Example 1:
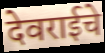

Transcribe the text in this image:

देवराईचे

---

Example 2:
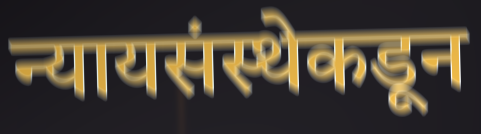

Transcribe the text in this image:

न्यायसंस्थेकडून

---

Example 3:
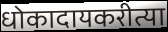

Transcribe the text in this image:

धोकादायकरीत्या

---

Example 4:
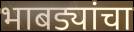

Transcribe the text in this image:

भाबड्यांचा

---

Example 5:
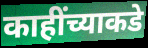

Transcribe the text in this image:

काहींच्याकडे